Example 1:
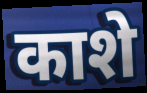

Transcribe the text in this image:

काशे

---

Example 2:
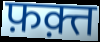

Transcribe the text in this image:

फ़क़्त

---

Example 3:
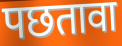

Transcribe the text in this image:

पछतावा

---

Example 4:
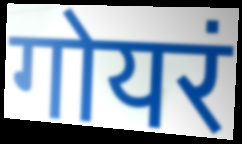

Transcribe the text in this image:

गोयरं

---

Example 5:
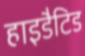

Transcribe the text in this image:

हाइडैटिड